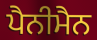
ਪੈਨੀਮੈਨ